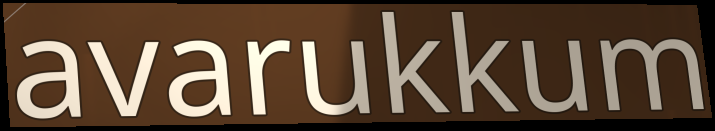
avarukkum